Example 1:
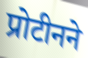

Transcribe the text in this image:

प्रोटीनने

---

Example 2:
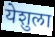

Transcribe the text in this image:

येशुला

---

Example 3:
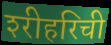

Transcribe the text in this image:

श्रीहरिची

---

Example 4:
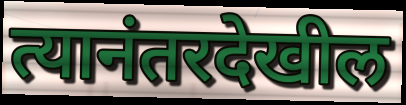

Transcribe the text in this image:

त्यानंतरदेखील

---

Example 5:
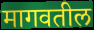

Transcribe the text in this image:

मागवतील